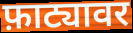
फ़ाट्यावर